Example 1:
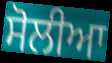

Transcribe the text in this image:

ਸੋਲੀਆ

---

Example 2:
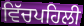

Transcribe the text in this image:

ਵਿੱਚਪਹਿਲੀ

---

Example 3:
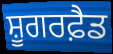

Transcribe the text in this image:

ਸ਼ੂਗਰਫ਼ੈਡ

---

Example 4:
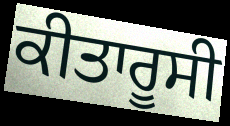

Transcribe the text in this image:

ਕੀਤਾਰੂਸੀ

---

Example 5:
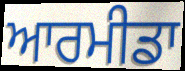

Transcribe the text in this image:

ਆਰਮੀਡਾ